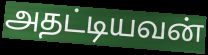
அதட்டியவன்